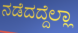
ನಡೆದದ್ದೆಲ್ಲಾ